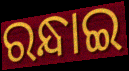
ରନ୍ଧାଇ